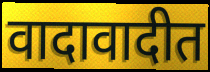
वादावादीत